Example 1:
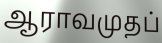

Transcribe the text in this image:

ஆராவமுதப்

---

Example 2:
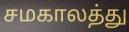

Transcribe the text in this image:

சமகாலத்து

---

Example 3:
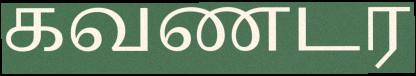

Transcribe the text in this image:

கவணடர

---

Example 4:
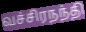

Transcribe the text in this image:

வச்சிரநந்தி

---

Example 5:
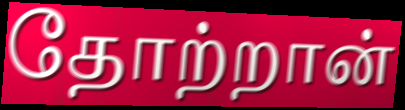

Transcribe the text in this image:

தோற்றான்